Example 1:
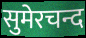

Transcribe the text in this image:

सुमेरचन्द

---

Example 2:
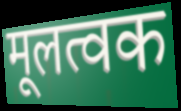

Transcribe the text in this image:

मूलत्वक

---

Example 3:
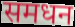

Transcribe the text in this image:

समधन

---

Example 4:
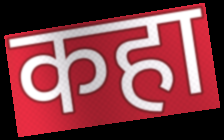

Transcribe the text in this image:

कहा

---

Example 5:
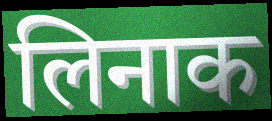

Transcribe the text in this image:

लिनाक